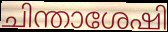
ചിന്താശേഷി